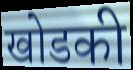
खोडकी